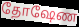
தோஷேண